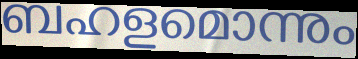
ബഹളമൊന്നും